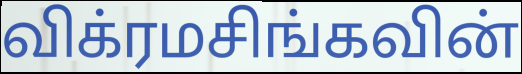
விக்ரமசிங்கவின்